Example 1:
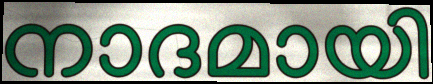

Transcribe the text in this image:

നാദമായി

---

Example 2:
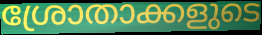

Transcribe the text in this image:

ശ്രോതാക്കളുടെ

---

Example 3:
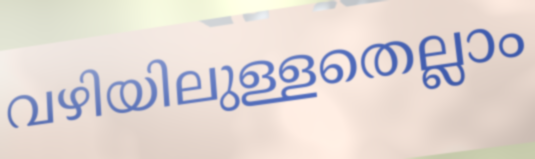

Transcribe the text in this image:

വഴിയിലുള്ളതെല്ലാം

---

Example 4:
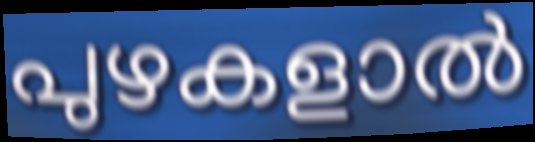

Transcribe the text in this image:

പുഴകളാൽ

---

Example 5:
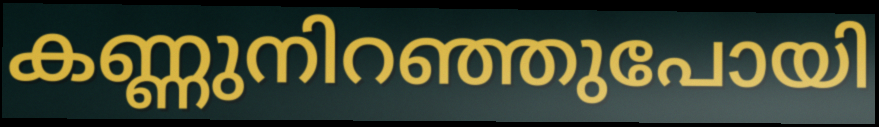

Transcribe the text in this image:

കണ്ണുനിറഞ്ഞുപോയി